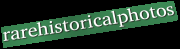
rarehistoricalphotos